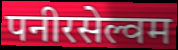
पनीरसेल्वम